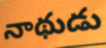
నాథుడు